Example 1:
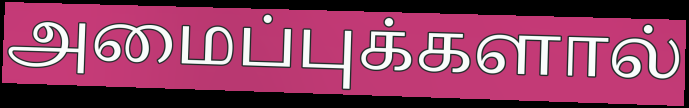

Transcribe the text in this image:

அமைப்புக்களால்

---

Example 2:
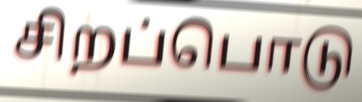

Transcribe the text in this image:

சிறப்பொடு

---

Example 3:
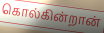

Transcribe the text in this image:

கொல்கின்றான்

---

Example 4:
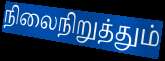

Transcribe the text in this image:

நிலைநிறுத்தும்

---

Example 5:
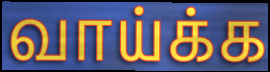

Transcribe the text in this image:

வாய்க்க